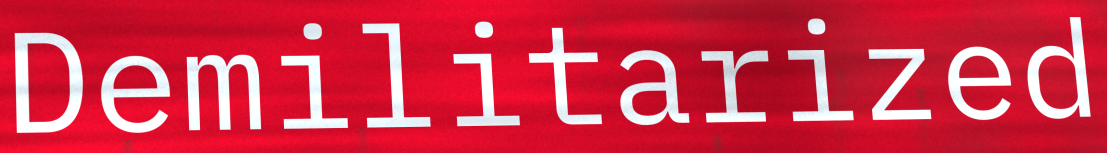
Demilitarized